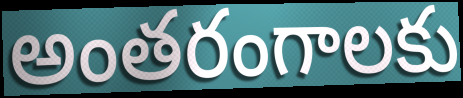
అంతరంగాలకు